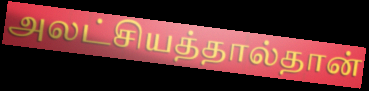
அலட்சியத்தால்தான்